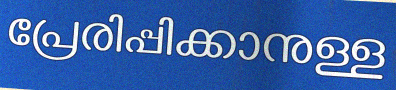
പ്രേരിപ്പിക്കാനുള്ള